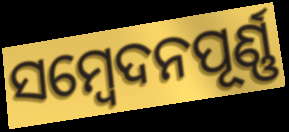
ସମ୍ବେଦନପୂର୍ଣ୍ଣ